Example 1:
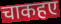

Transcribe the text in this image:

चाकहए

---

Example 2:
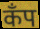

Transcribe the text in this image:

कॅंप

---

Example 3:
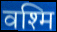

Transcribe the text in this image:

वश्मि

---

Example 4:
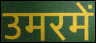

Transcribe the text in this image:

उमरमें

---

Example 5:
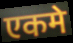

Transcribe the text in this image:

एकमे